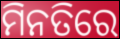
ମିନତିରେ